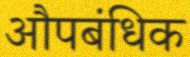
औपबंधिक